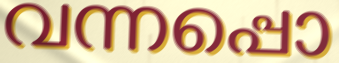
വന്നപ്പൊ